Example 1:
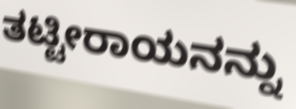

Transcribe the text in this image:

ತಟ್ಟೀರಾಯನನ್ನು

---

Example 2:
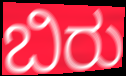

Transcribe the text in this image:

ಬಿರು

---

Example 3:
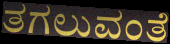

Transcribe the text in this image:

ತಗಲುವಂತೆ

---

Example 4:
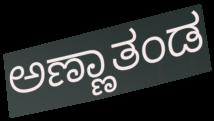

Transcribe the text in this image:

ಅಣ್ಣಾತಂಡ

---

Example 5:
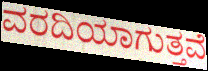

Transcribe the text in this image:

ವರದಿಯಾಗುತ್ತವೆ